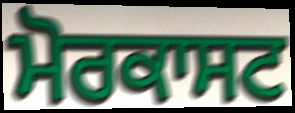
ਮੋਰਕਾਸਟ